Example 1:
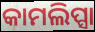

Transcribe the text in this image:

କାମଲିପ୍ସା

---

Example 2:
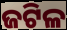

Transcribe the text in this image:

ଜଟିଳ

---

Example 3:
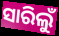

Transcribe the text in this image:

ସାରିଲୁଁ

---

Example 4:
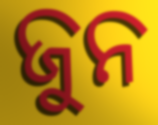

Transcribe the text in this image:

ଜୁନ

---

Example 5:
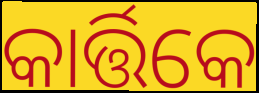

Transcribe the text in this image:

କାର୍ତ୍ତିକେ